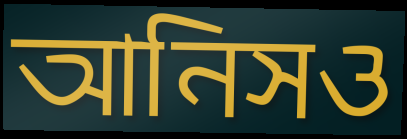
আনিসও